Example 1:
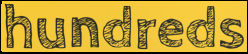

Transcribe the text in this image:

hundreds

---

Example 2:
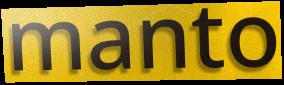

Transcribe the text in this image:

manto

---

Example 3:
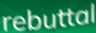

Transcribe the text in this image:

rebuttal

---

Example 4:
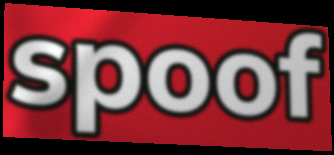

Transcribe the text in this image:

spoof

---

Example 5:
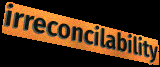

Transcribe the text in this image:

irreconcilability